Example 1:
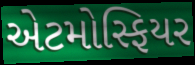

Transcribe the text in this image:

એટમોસ્ફિયર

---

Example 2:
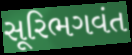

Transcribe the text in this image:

સૂરિભગવંત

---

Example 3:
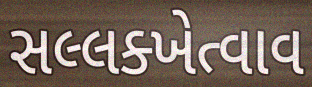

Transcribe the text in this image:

સલ્લક્ખેત્વાવ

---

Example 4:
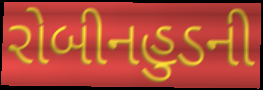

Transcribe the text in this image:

રોબીનહુડની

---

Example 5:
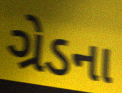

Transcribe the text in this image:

ગ્રેડના